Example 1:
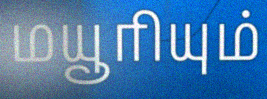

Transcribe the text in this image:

மயூரியும்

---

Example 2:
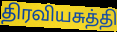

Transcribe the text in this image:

திரவியசுத்தி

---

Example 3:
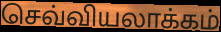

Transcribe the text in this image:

செவ்வியலாக்கம்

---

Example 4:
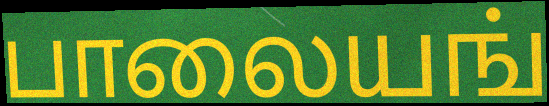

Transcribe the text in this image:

பாலையங்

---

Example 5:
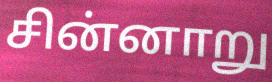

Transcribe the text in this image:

சின்னாறு